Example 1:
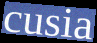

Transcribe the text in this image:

cusia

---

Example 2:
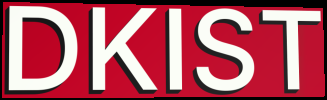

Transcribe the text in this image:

DKIST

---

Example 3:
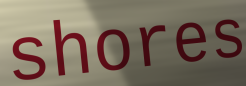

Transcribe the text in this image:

shores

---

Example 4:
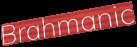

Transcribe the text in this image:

Brahmanic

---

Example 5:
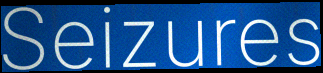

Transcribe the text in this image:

Seizures